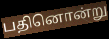
பதினொன்று